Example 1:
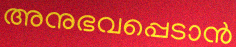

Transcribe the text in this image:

അനുഭവപ്പെടാൻ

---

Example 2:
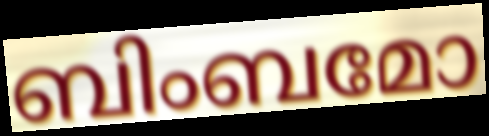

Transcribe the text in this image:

ബിംബമോ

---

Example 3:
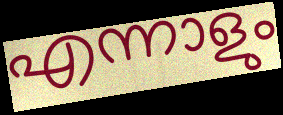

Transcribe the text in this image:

എന്നാളും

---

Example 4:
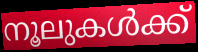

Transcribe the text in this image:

നൂലുകൾക്ക്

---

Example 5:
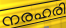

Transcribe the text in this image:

നരഹരി